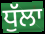
ਧੁੱਲਾ